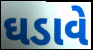
ઘડાવે